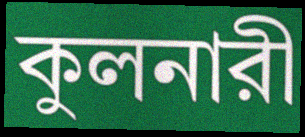
কুলনারী